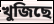
খুজিছে